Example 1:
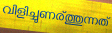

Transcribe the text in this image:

വിളിച്ചുണര്ത്തുന്നത്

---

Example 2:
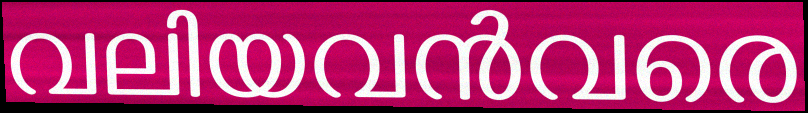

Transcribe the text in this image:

വലിയവൻവരെ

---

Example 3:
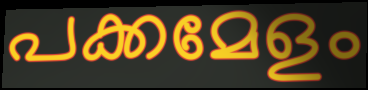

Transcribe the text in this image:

പക്കമേളം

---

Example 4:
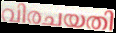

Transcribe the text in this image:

വിരചയതി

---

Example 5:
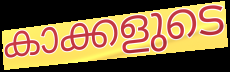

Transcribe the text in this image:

കാക്കളുടെ